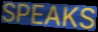
SPEAKS